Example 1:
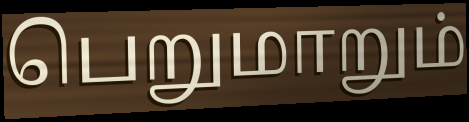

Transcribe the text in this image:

பெறுமாறும்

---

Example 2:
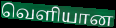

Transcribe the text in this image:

வெளியான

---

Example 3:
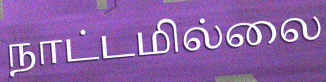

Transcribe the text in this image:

நாட்டமில்லை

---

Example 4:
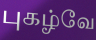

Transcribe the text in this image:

புகழ்வே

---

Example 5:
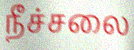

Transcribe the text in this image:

நீச்சலை